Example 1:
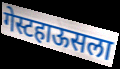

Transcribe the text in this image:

गेस्टहाऊसला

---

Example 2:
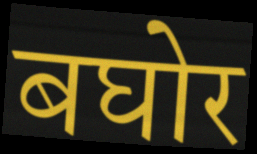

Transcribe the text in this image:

बघोर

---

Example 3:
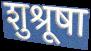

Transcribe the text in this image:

शुश्रूषा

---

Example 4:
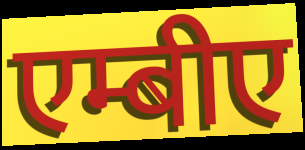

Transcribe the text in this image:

एम्बीए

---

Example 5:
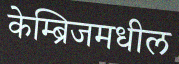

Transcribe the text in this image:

केम्ब्रिजमधील